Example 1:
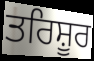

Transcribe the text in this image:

ਤਰਿਸ਼ੂਰ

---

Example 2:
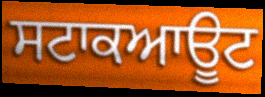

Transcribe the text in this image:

ਸਟਾਕਆਊਟ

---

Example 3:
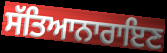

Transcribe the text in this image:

ਸੱਤਿਆਨਾਰਾਇਣ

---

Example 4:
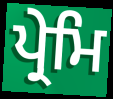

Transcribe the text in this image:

ਪ੍ਰੇਮਿ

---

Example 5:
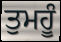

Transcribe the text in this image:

ਤੁਮਹੂੰ